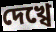
দেখ্বে